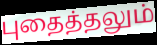
புதைத்தலும்